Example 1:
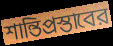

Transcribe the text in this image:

শান্তিপ্রস্তাবের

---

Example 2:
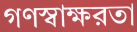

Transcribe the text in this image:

গণস্বাক্ষরতা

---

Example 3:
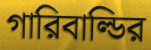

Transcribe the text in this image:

গারিবাল্ডির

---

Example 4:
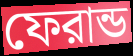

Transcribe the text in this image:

ফেরান্ড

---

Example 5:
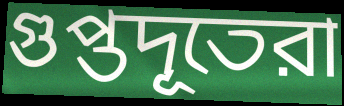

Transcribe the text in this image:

গুপ্তদূতেরা